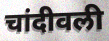
चांदीवली